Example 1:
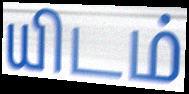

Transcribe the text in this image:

யிடம்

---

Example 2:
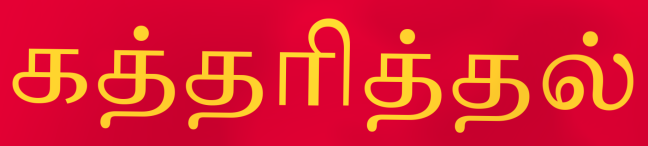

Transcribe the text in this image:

கத்தரித்தல்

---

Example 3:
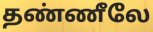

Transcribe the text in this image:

தண்ணீலே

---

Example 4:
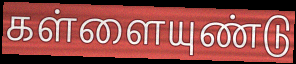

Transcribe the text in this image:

கள்ளையுண்டு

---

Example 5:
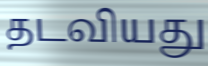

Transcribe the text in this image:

தடவியது